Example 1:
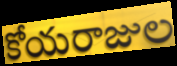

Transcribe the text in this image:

కోయరాజుల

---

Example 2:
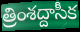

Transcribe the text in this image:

త్రింశద్దాసీక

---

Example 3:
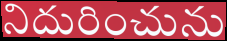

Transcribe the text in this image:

నిదురించును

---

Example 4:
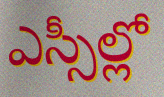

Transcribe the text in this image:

ఎస్సీల్లో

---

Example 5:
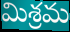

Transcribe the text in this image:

మిశ్రమ